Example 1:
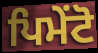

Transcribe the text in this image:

ਪਿਮੇਂਟੋ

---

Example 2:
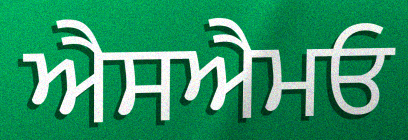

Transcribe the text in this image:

ਐਸਐਮਓ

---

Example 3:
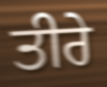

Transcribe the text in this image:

ਤੀਰੇ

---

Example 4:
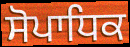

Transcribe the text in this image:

ਸੋਪਾਧਿਕ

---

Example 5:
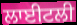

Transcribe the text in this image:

ਲਾਈਟਲੀ